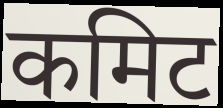
कमिट